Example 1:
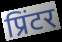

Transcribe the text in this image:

प्रिंटर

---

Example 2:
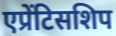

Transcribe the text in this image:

एप्रेंटिसशिप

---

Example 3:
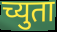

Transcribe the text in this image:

च्युता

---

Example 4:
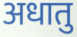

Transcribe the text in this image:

अधातु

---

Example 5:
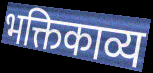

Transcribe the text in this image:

भक्तिकाव्य